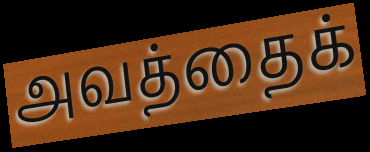
அவத்தைக்